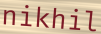
nikhil